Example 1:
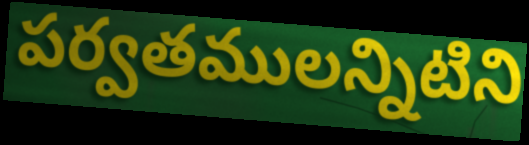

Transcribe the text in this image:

పర్వతములన్నిటిని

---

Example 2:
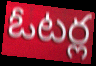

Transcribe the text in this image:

ఓటర్ల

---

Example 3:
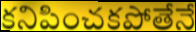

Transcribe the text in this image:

కనిపించకపోతేనే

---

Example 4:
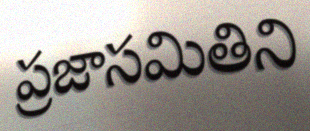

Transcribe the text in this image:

ప్రజాసమితిని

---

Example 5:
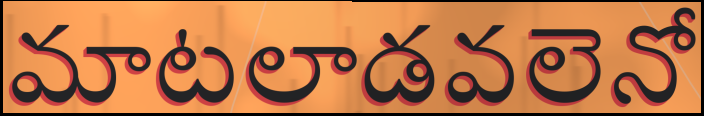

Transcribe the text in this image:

మాటలాడవలెనో